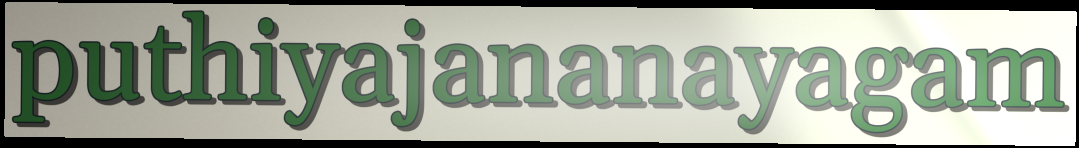
puthiyajananayagam